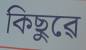
কিছুৱে